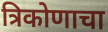
त्रिकोणाचा